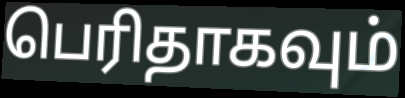
பெரிதாகவும்